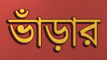
ভাঁড়ার